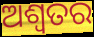
ଅଶ୍ୱତର